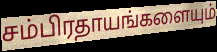
சம்பிரதாயங்களையும்